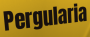
Pergularia